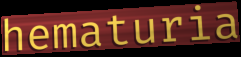
hematuria